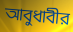
আবুধাবীর